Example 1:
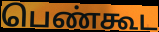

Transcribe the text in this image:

பெண்கூட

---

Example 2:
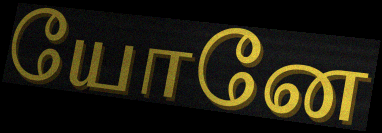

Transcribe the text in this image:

யோனே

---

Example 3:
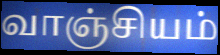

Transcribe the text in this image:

வாஞ்சியம்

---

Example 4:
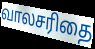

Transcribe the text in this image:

வாலசரிதை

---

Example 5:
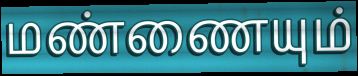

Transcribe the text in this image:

மண்ணையும்